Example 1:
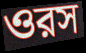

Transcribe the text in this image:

ওরস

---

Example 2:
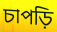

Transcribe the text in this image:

চাপড়ি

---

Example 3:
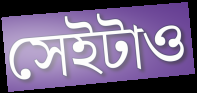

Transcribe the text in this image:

সেইটাও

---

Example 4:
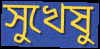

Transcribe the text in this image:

সুখেষু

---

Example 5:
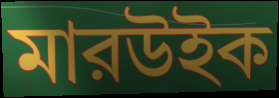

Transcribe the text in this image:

মারউইক